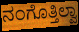
ನಂಗೊತ್ತಿಲ್ವಾ